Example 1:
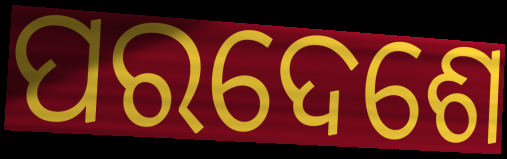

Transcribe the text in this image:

ପରଦେଶେ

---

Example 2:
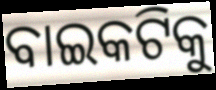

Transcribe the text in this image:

ବାଇକଟିକୁ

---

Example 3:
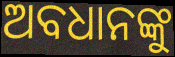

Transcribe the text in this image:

ଅବଧାନଙ୍କୁ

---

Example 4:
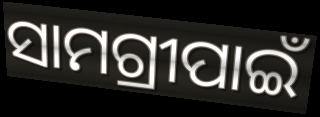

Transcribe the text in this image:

ସାମଗ୍ରୀପାଇଁ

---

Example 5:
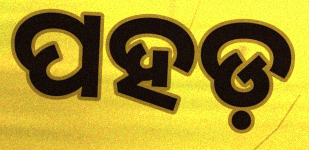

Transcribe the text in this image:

ପହଡ଼